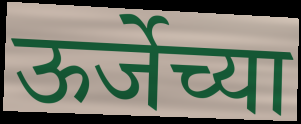
ऊर्जेच्या